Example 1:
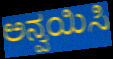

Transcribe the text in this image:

ಅನ್ವಯಿಸಿ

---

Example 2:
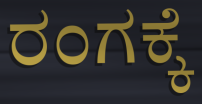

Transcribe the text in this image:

ರಂಗಕ್ಕೆ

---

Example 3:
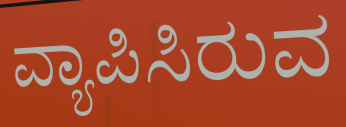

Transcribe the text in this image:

ವ್ಯಾಪಿಸಿರುವ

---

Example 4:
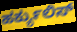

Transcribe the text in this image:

ಹರ್ಕ್ಯುಲಿಸ್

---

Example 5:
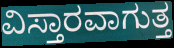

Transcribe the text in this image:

ವಿಸ್ತಾರವಾಗುತ್ತ